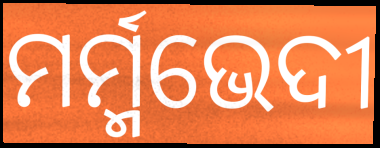
ମର୍ମ୍ମଭେଦୀ